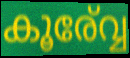
കൂര്വ്വേ